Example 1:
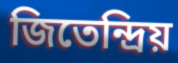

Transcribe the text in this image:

জিতেন্দ্রিয়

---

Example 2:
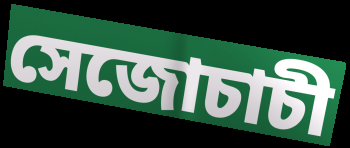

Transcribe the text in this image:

সেজোচাচী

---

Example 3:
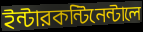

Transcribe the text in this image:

ইন্টারকন্টিনেন্টালে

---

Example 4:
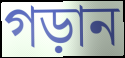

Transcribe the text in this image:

গড়ান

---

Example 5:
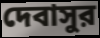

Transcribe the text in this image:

দেবাসুর